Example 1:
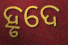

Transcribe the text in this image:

ହୃଦେ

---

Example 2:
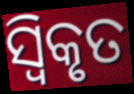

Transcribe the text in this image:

ସ୍ୱିକୃତ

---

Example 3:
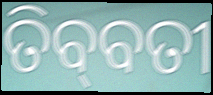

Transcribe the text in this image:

ତିବ୍‌ବତୀ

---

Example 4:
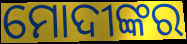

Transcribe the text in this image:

ମୋଦୀଙ୍କର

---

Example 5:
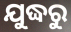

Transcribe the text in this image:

ଯୁଦ୍ଧରୁ